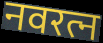
नवरत्‍न